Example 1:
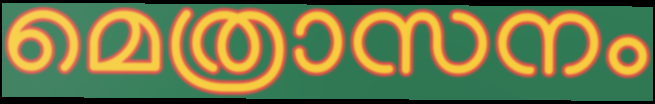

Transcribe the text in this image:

മെത്രാസനം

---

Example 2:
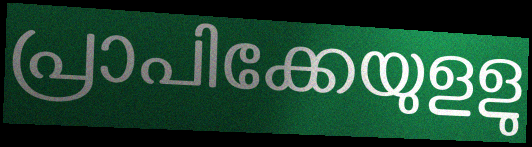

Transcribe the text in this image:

പ്രാപിക്കേയുളളു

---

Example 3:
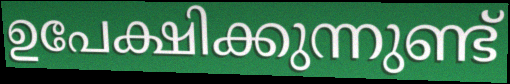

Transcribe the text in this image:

ഉപേക്ഷിക്കുന്നുണ്ട്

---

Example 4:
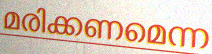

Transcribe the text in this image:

മരിക്കണമെന്ന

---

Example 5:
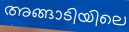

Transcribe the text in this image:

അങ്ങാടിയിലെ